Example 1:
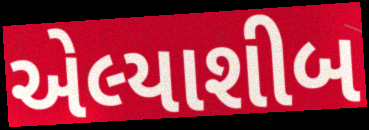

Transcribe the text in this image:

એલ્યાશીબ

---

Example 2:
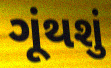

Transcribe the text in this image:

ગૂંથશું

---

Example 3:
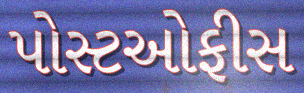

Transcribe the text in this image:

પોસ્ટઓફીસ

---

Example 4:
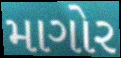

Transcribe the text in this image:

માગોર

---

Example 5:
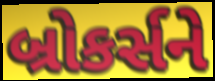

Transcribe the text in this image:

બ્રોકર્સને